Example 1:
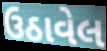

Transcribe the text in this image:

ઉઠાવેલ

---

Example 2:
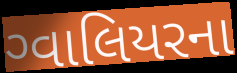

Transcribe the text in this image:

ગ્વાલિયરના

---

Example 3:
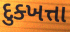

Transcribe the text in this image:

દુક્ખત્તા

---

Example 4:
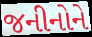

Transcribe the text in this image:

જનીનોને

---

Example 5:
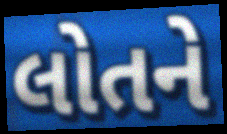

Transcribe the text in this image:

લોતને